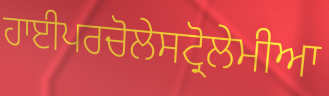
ਹਾਈਪਰਚੋਲੇਸਟ੍ਰੋਲੇਮੀਆ